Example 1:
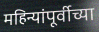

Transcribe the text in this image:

महिन्यांपूर्वीच्या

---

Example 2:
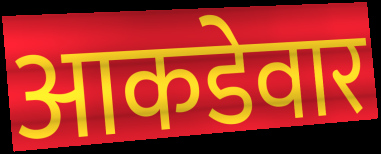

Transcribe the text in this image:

आकडेवार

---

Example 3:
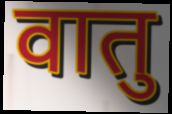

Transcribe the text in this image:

वातु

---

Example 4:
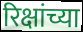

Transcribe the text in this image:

रिक्षांच्या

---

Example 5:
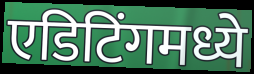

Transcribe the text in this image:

एडिटिंगमध्ये